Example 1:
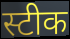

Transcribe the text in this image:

स्टीक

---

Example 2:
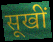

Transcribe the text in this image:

सूखीं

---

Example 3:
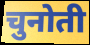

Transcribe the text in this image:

चुनोती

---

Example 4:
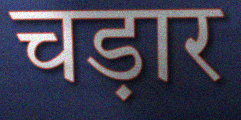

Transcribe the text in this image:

चड़ार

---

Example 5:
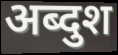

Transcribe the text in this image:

अब्दुश